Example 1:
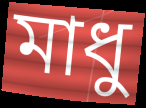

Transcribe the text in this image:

মাধু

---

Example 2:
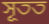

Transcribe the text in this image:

সূতত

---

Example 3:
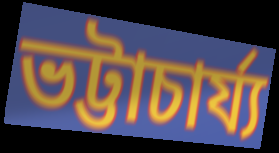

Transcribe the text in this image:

ভট্টাচাৰ্য্য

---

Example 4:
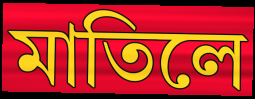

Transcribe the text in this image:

মাতিলে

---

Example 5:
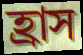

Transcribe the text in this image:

হ্ৰাস